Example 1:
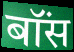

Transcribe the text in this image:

बॉंस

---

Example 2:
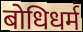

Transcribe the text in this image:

बोधिधर्म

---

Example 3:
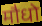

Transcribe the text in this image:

मौधो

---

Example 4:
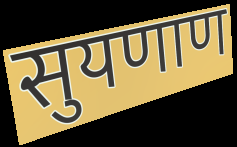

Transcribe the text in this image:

सुयणाण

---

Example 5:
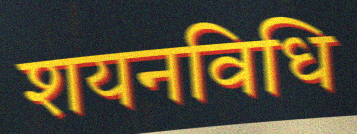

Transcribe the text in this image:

शयनविधि